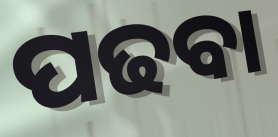
ପଢବା